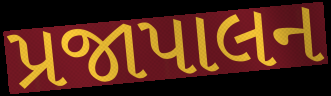
પ્રજાપાલન